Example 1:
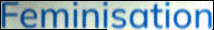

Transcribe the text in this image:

Feminisation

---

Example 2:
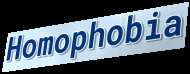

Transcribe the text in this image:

Homophobia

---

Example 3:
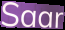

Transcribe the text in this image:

Saar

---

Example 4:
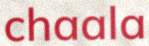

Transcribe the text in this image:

chaala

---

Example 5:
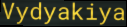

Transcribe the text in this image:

Vydyakiya